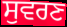
ਸੁਵਰਣ